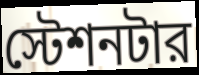
স্টেশনটার